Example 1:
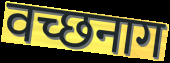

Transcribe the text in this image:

वच्छनाग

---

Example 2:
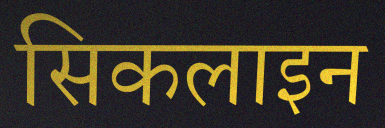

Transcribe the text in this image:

सिकलाइन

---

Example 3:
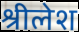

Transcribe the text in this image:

श्रीलेश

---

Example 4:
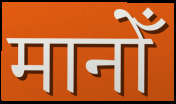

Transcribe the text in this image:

मानोँ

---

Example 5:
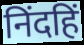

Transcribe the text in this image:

निंदहिं